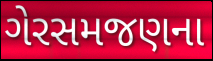
ગેરસમજણના